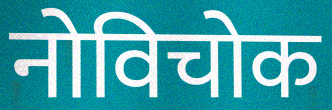
नोविचोक